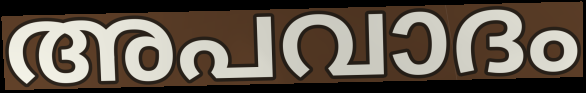
അപവാദം